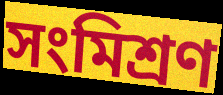
সংমিশ্ৰণ